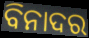
ବିନାଦର